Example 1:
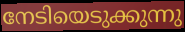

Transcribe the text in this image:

നേടിയെടുക്കുന്നു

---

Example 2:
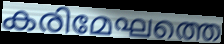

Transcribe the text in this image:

കരിമേഘത്തെ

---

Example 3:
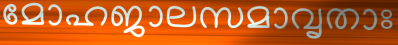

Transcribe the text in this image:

മോഹജാലസമാവൃതാഃ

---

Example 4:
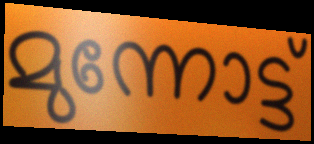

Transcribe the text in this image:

മുന്നോട്ട്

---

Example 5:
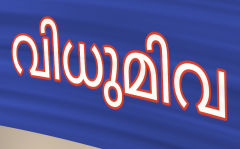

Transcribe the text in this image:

വിധുമിവ